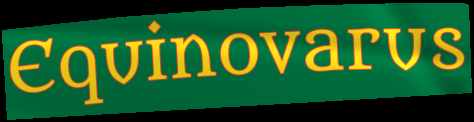
Equinovarus